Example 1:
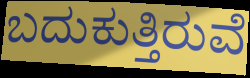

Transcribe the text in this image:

ಬದುಕುತ್ತಿರುವೆ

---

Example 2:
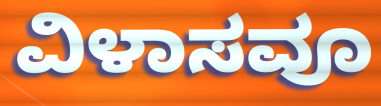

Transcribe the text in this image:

ವಿಳಾಸವೂ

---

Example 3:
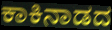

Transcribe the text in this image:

ಕಾಕಿನಾಡದ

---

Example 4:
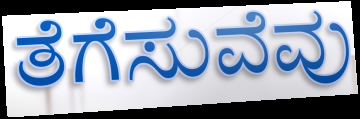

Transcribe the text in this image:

ತೆಗೆಸುವೆವು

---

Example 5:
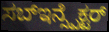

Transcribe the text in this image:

ಸಬ್ಇನ್ಸ್ಪೆಕ್ಟರ್